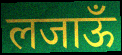
लजाऊँ